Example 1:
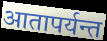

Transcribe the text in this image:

आतापर्यन्त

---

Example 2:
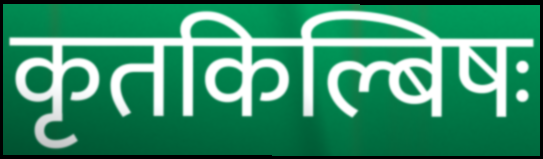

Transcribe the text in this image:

कृतकिल्बिषः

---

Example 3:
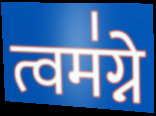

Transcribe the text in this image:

त्वम॑ग्ने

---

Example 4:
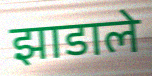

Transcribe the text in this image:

झाडाले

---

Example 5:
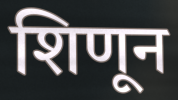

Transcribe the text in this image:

शिणून